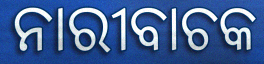
ନାରୀବାଚକ